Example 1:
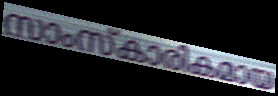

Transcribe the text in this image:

സാംസ്‌കാരികമായ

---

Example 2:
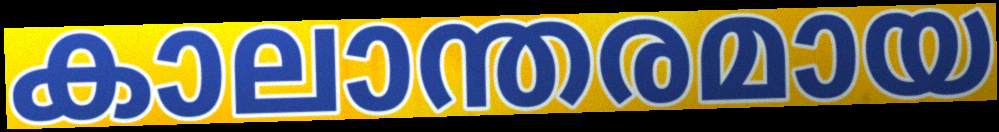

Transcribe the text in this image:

കാലാന്തരമായ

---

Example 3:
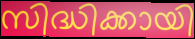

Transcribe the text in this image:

സിദ്ധിക്കായി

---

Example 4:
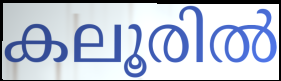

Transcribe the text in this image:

കലൂരിൽ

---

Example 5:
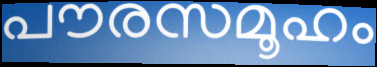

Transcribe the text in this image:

പൗരസമൂഹം